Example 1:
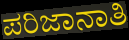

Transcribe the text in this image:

ಪರಿಜಾನಾತಿ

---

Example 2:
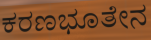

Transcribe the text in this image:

ಕರಣಭೂತೇನ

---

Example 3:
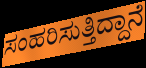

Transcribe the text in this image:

ಸಂಹರಿಸುತ್ತಿದ್ದಾನೆ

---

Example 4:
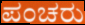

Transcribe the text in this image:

ಪಂಚರು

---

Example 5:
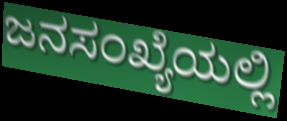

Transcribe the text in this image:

ಜನಸಂಖ್ಯೆಯಲ್ಲಿ